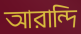
আরান্দি